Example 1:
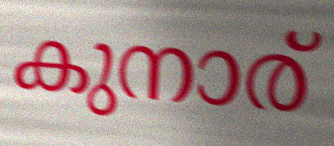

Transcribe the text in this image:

കുനാര്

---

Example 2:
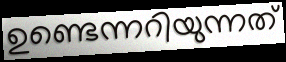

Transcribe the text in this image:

ഉണ്ടെന്നറിയുന്നത്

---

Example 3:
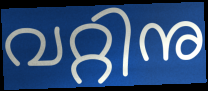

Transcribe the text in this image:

വറ്റിനു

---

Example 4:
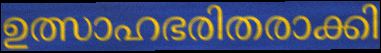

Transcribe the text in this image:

ഉത്സാഹഭരിതരാക്കി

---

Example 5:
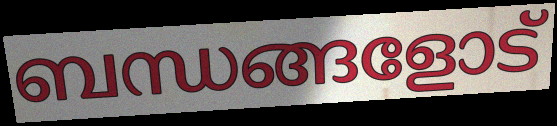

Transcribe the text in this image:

ബന്ധങ്ങളോട്